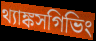
থ্যাঙ্কসগিভিং